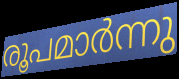
രൂപമാർന്നു